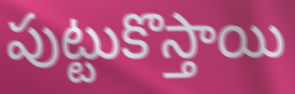
పుట్టుకొస్తాయి